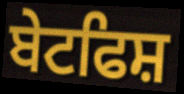
ਬੇਟਫਿਸ਼